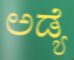
ಅಡ್ಯೆ